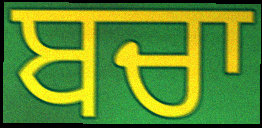
ਬਚਾ